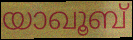
യാഖൂബ്